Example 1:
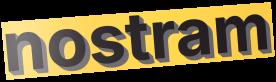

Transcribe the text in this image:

nostram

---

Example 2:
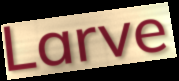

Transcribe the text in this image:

Larve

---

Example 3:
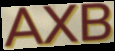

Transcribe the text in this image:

AXB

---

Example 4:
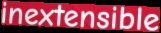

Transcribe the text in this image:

inextensible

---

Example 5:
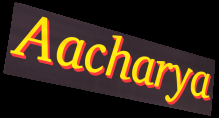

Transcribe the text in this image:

Aacharya